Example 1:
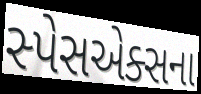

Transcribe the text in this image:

સ્પેસએક્સના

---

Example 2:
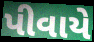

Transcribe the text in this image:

પીવાયે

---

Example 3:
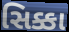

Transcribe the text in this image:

સિક્કા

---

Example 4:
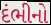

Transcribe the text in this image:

દંભીનો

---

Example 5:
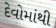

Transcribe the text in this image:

દેવોમાંથી